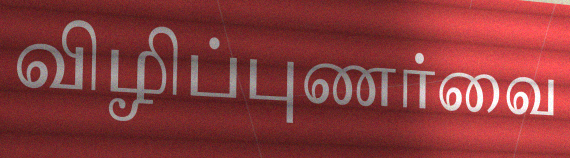
விழிப்புணர்வை